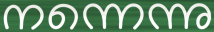
നന്നെന്നു